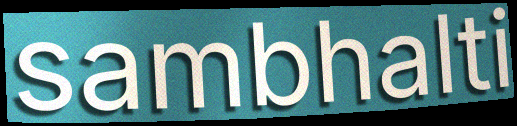
sambhalti